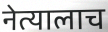
नेत्यालाच